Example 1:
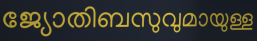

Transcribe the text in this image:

ജ്യോതിബസുവുമായുള്ള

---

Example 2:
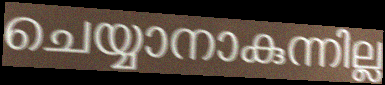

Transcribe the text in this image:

ചെയ്യാനാകുന്നില്ല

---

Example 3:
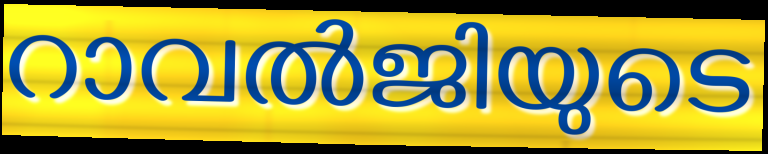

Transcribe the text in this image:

റാവൽജിയുടെ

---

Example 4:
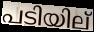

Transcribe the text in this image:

പടിയില്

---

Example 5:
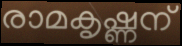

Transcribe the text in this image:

രാമകൃഷ്ണന്